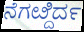
ನೆಗೞ್ದಿರ್ದ